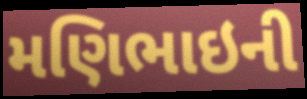
મણિભાઇની